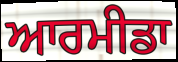
ਆਰਮੀਡਾ